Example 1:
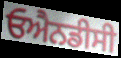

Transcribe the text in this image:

ਓਐਨਡੀਸੀ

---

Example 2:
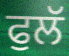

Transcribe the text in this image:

ਫੁਲੱ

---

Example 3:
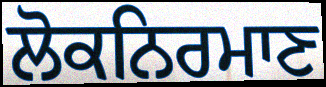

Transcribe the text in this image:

ਲੋਕਨਿਰਮਾਣ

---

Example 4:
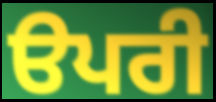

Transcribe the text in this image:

ੳਪਰੀ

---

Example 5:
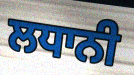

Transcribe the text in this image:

ਲਧਾਨੀ